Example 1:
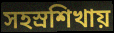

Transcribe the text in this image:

সহস্রশিখায়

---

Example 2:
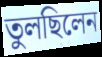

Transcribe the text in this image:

তুলছিলেন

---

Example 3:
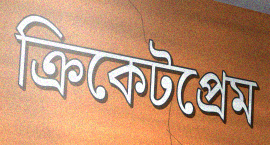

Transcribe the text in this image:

ক্রিকেটপ্রেম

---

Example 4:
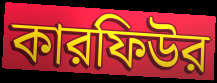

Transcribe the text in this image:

কারফিউর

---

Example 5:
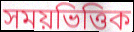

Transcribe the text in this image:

সময়ভিত্তিক